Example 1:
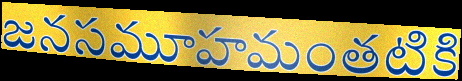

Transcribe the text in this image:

జనసమూహమంతటికి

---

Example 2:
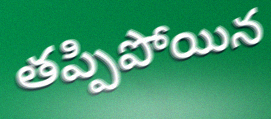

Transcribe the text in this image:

తప్పిపోయిన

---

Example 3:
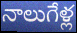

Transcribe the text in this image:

నాలుగేళ్ల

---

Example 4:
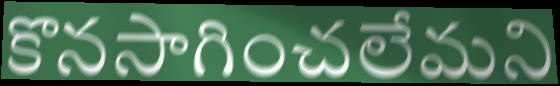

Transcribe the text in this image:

కొనసాగించలేమని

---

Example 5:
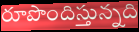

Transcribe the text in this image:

రూపొందిస్తున్నది